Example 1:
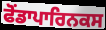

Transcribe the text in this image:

ਫੋਂਡਾਪਾਰਿਨਕਸ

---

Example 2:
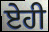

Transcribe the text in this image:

ਏਹੀ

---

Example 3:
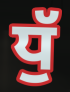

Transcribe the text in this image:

ਧੁੱ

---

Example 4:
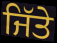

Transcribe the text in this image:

ਜਿੱਤੇ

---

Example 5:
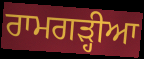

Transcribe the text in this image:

ਰਾਮਗੜ੍ਹੀਆ